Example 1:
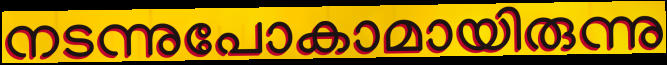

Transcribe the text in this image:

നടന്നുപോകാമായിരുന്നു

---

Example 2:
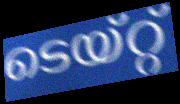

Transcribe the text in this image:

ടെയ്റ്റ്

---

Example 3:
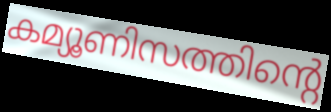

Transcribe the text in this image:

കമ്യൂണിസത്തിന്റെ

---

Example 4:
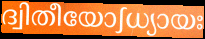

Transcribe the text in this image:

ദ്വിതീയോഽധ്യായഃ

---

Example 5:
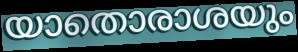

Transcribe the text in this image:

യാതൊരാശയും